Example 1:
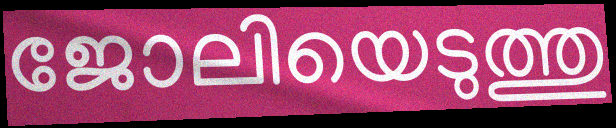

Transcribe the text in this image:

ജോലിയെടുത്തു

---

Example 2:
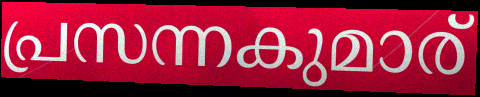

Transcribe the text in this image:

പ്രസന്നകുമാര്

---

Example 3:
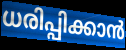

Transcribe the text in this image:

ധരിപ്പിക്കാൻ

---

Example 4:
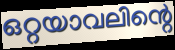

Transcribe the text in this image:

ഒറ്റയാവലിന്റെ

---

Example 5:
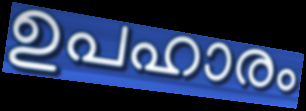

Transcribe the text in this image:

ഉപഹാരം